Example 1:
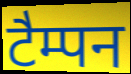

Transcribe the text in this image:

टैम्पन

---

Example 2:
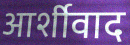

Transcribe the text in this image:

आर्शीवाद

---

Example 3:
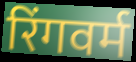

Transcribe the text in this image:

रिंगवर्म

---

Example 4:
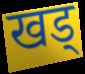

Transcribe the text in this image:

खड्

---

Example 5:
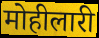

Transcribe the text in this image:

मोहीलारी